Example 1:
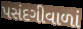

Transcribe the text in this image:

પસંદગીવાળાં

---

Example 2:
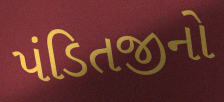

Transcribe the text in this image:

પંડિતજીનો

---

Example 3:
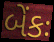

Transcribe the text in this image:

બેંકઃ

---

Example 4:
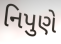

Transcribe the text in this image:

નિપુણે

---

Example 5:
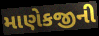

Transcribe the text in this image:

માણેકજીની